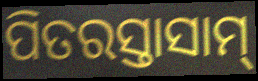
ପିତରସ୍ତାସାମ୍